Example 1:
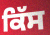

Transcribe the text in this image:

ਕਿੱਸ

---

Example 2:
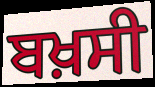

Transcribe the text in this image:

ਬਖ਼ਸੀ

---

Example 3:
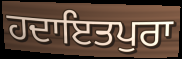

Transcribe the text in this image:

ਹਦਾਇਤਪੁਰਾ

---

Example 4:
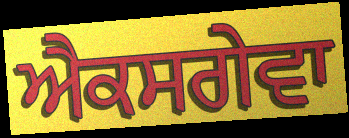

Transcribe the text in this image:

ਐਕਸਗੇਵਾ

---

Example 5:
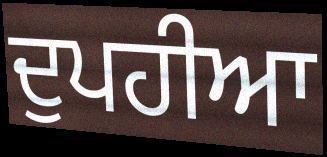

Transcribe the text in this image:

ਦੁਪਹੀਆ